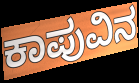
ಕಾಪುವಿನ